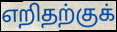
எறிதற்குக்